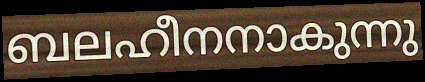
ബലഹീനനാകുന്നു